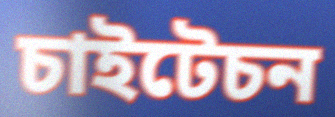
চাইটেচন